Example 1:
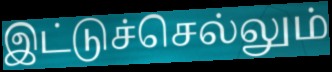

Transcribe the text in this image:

இட்டுச்செல்லும்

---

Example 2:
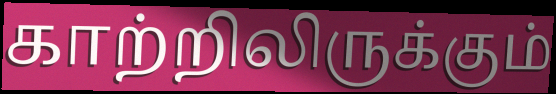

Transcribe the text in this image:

காற்றிலிருக்கும்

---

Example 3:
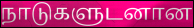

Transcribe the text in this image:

நாடுகளுடனான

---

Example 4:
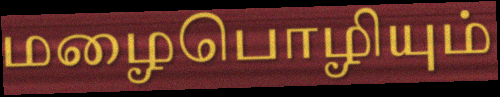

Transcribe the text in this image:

மழைபொழியும்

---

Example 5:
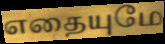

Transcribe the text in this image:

எதையுமே